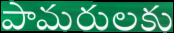
పామరులకు